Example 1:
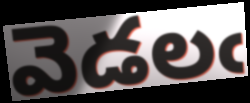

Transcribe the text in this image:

వెడలఁ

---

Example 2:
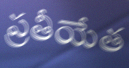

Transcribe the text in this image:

ప్రతీయేత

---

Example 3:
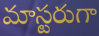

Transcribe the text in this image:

మాస్టరుగా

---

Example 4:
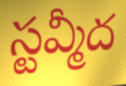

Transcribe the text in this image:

స్టవ్మీద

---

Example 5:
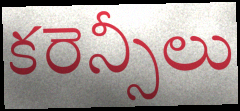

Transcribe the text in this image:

కరెన్సీలు